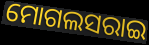
ମୋଗଲସରାଇ